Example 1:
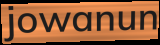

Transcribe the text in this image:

jowanun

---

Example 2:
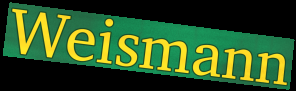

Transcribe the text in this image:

Weismann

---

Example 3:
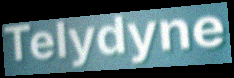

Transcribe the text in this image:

Telydyne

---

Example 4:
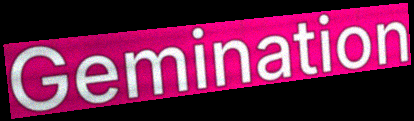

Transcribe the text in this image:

Gemination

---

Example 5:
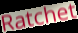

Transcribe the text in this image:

Ratchet